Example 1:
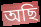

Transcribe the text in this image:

অছি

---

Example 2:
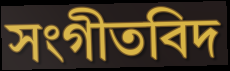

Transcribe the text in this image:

সংগীতবিদ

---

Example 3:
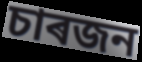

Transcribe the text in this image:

চাৰজন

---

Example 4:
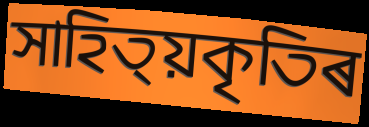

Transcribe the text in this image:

সাহিত্য়কৃতিৰ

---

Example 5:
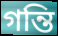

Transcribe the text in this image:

গন্তি